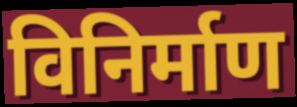
विनिर्माण